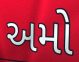
અમો